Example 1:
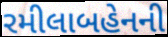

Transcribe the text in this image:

રમીલાબહેનની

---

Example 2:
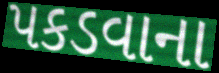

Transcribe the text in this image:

પકડવાના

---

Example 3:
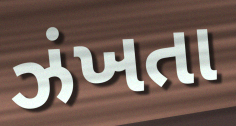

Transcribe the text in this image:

ઝંખતા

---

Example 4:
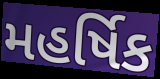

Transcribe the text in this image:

મહર્ષિક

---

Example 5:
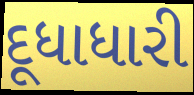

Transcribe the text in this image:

દૂધાધારી